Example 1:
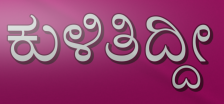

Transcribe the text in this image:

ಕುಳಿತಿದ್ದೀ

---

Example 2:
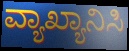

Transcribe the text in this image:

ವ್ಯಾಖ್ಯಾನಿಸಿ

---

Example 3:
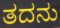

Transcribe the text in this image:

ತದನು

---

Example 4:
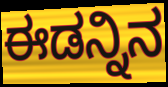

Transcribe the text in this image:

ಈಡನ್ನಿನ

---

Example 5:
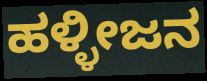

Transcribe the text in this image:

ಹಳ್ಳೀಜನ